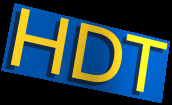
HDT